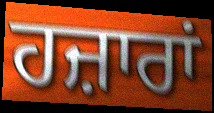
ਹਜ਼ਾਰਾਂ